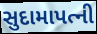
સુદામાપત્ની